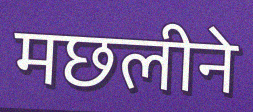
मछलीने